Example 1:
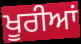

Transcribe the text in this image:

ਖੂਰੀਆਂ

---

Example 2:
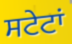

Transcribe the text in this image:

ਸਟੇਟਾਂ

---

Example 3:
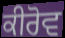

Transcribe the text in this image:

ਕੀਰੋਵ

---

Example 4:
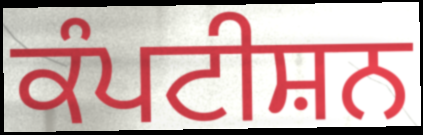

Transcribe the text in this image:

ਕੰਪਟੀਸ਼ਨ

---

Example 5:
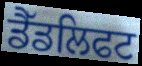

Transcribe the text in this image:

ਡੈੱਡਲਿਫਟ